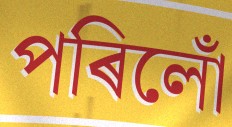
পৰিলোঁ